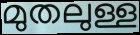
മുതലുള്ള